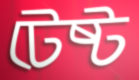
টেষ্ট